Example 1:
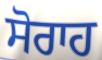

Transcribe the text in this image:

ਸੋਰਾਹ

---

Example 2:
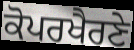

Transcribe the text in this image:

ਕੋਪਰਖੈਰਣੇ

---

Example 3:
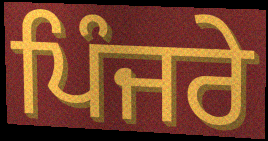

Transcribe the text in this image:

ਪਿੰਜਰੇ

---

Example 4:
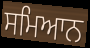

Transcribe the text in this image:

ਸਮਿਆਨ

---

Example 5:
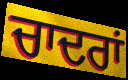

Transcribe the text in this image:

ਚਾਦਰਾਂ